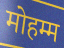
मोहम्म